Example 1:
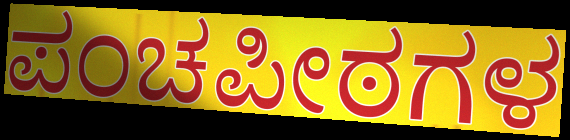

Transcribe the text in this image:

ಪಂಚಪೀಠಗಳ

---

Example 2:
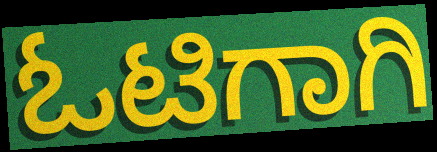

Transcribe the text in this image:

ಓಟಿಗಾಗಿ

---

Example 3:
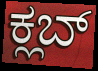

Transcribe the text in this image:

ಕ್ಲಬ್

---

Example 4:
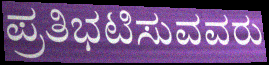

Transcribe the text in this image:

ಪ್ರತಿಭಟಿಸುವವರು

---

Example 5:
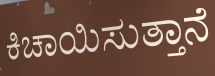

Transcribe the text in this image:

ಕಿಚಾಯಿಸುತ್ತಾನೆ